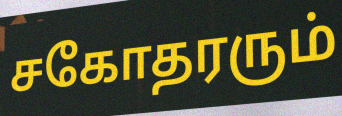
சகோதரரும்